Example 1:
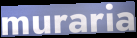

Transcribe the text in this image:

muraria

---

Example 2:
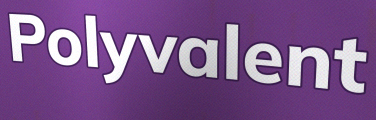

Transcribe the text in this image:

Polyvalent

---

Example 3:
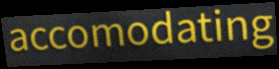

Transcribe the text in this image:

accomodating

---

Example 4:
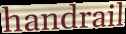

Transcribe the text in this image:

handrail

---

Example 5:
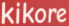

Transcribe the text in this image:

kikore